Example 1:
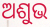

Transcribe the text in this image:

ଅଶୁଭ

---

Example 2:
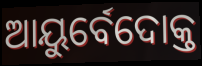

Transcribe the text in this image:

ଆୟୁର୍ବେଦୋକ୍ତ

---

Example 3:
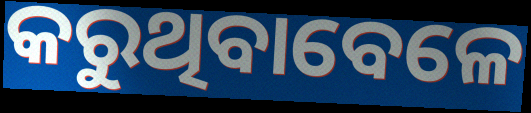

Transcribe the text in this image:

କରୁଥିବାବେଳେ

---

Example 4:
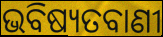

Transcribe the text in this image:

ଭବିଷ୍ୟତବାଣୀ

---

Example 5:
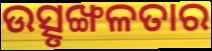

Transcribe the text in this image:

ଉତ୍ସୃଙ୍ଖଳତାର